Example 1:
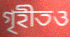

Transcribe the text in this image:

গৃহীতও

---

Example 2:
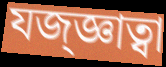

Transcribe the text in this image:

যজ্জ্ঞাত্বা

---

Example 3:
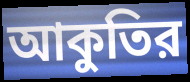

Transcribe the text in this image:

আকুতির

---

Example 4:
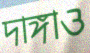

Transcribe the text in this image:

দাঙ্গাও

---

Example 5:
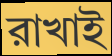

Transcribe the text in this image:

রাখাই